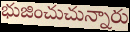
భుజించుచున్నారు